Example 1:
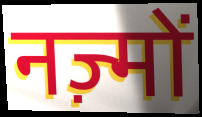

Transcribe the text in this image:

नज़्मों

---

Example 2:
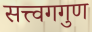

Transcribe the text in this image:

सत्त्वगगुण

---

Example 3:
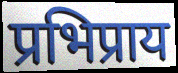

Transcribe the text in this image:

प्रभिप्राय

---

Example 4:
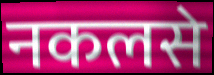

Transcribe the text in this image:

नकलसे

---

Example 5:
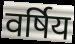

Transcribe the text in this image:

वर्षिय